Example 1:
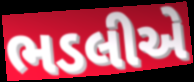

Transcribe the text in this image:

ભડલીએ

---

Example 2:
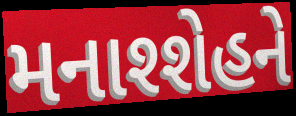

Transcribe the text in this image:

મનાશ્શેહને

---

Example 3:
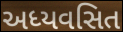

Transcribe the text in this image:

અધ્યવસિત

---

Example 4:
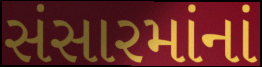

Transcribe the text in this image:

સંસારમાંનાં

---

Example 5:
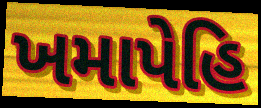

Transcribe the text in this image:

ખમાપેહિ